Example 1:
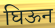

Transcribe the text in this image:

घिऊन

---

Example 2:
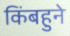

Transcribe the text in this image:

किंबहुने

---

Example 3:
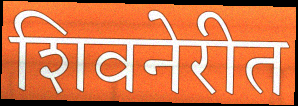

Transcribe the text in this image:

शिवनेरीत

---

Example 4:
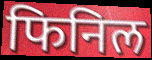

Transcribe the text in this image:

फिनिल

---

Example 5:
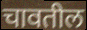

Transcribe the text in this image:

चावतील